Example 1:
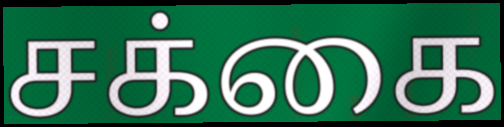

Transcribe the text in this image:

சக்கை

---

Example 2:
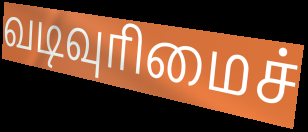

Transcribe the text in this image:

வடிவுரிமைச்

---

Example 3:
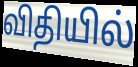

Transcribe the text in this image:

விதியில்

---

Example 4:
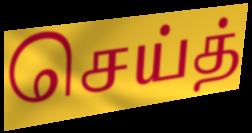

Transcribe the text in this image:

செய்த்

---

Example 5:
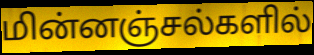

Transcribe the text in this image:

மின்னஞ்சல்களில்